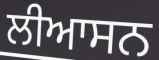
ਲੀਆਸਨ